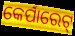
କେର୍ପାରେଟ୍